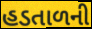
હડતાળની